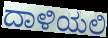
ದಾಳಿಯಲಿ